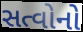
સત્વોનો